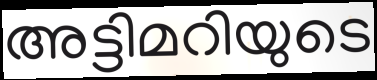
അട്ടിമറിയുടെ